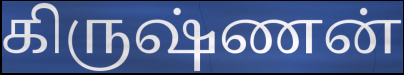
கிருஷ்ணன்